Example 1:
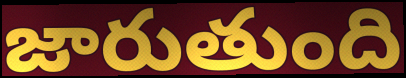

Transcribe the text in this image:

జారుతుంది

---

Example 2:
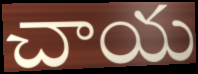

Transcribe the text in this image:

చాయ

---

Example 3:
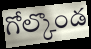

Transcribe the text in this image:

గోల్కొండ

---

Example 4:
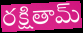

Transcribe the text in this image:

రక్షితామ్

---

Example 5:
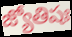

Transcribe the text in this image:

జ్యోతిషః